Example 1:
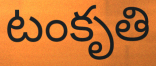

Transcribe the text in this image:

టంకృతి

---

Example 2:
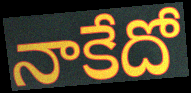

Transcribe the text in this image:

నాకేదో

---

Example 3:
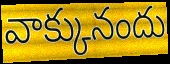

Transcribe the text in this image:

వాక్కునందు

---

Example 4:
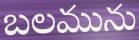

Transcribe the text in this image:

బలమును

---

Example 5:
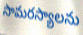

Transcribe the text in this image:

సామరస్యాలను